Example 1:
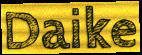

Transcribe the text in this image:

Daike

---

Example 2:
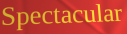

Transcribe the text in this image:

Spectacular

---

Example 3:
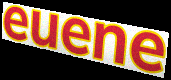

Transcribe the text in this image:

euene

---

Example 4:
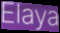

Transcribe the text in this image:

Elaya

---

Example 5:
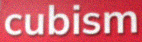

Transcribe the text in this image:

cubism